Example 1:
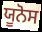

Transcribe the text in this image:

ਯੂਨੋਸ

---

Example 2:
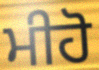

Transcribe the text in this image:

ਮੀਹੋ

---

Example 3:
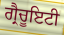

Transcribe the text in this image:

ਗ੍ਰੈਚੂਇਟੀ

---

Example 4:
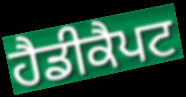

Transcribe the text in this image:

ਹੈਡੀਕੈਪਟ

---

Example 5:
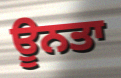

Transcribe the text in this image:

ਊਨਤਾ